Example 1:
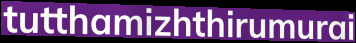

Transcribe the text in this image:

tutthamizhthirumurai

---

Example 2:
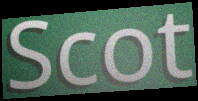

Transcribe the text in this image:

Scot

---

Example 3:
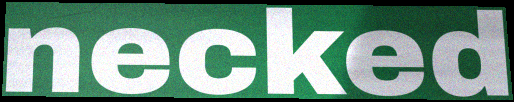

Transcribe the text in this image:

necked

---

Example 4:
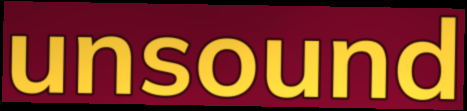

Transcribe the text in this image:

unsound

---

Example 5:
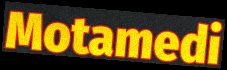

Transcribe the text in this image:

Motamedi